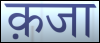
क़जा